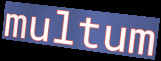
multum